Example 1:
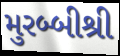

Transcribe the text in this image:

મુરબ્બીશ્રી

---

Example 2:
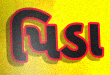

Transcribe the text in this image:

પિડા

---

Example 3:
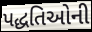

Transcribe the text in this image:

પદ્ધતિઓની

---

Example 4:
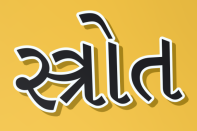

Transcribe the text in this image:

સ્ત્રોત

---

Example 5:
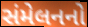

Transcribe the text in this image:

સંમેલનનો